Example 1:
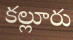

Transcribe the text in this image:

కల్లూరు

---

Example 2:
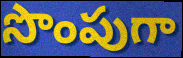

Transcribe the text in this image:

సొంపుగా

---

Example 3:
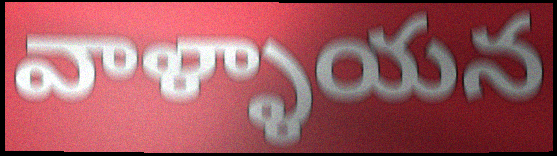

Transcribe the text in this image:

వాళ్ళాయన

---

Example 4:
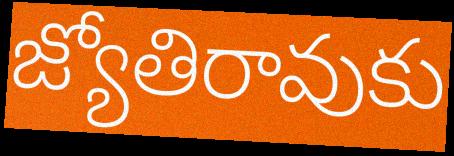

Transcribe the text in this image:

జ్యోతిరావుకు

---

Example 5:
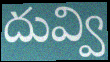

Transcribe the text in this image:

దువ్వి